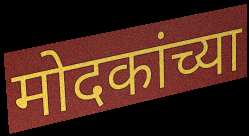
मोदकांच्या